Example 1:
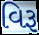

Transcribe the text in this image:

વિરૂ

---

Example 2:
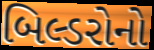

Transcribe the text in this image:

બિલ્ડરોનો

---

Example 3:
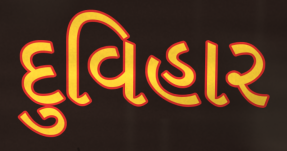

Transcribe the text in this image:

દુવિહાર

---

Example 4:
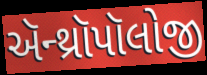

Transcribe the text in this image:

ઍન્થ્રૉપૉલોજી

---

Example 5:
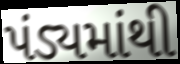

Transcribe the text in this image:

પંડ્યમાંથી